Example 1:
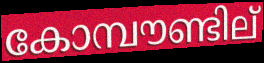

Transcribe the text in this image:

കോമ്പൗണ്ടില്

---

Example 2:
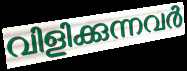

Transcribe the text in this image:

വിളിക്കുന്നവർ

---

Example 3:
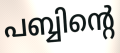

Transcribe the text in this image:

പബ്ബിന്റെ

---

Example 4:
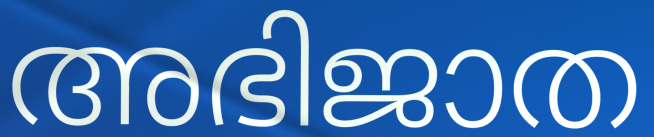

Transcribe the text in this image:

അഭിജാത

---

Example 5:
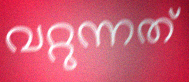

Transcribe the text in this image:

വറ്റുന്നത്